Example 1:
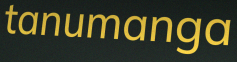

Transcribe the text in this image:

tanumanga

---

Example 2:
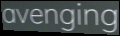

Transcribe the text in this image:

avenging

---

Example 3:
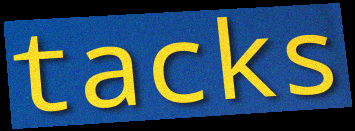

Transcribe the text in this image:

tacks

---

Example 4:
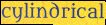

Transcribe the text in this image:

cylindrical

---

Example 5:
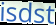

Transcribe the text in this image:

isdst